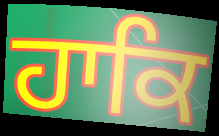
ਹਾਕਿ